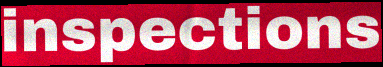
inspections